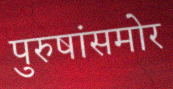
पुरुषांसमोर